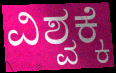
ವಿಶ್ವಕ್ಕೆ